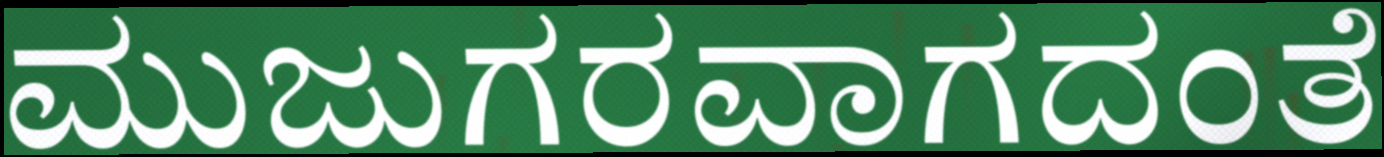
ಮುಜುಗರವಾಗದಂತೆ